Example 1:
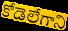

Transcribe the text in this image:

కోడెలేగాని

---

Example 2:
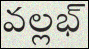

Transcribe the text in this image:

వల్లభ్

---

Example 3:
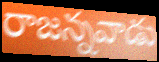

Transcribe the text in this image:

రాజన్నవాడు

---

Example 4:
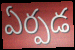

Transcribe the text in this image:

ఏర్పడ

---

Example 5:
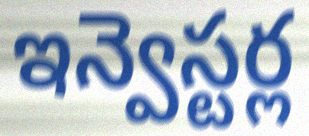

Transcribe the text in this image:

ఇన్వెస్టర్ల